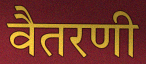
वैतरणी